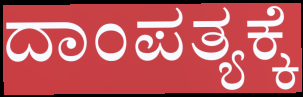
ದಾಂಪತ್ಯಕ್ಕೆ